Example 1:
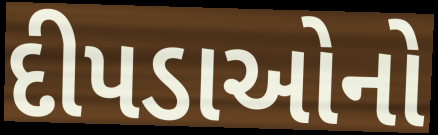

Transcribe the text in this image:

દીપડાઓનો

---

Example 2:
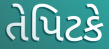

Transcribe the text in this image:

તેપિટકે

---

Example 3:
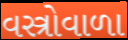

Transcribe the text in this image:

વસ્ત્રોવાળા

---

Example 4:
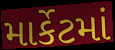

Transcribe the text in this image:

માર્કેટમાં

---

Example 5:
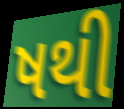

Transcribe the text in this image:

ષથી